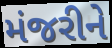
મંજરીને